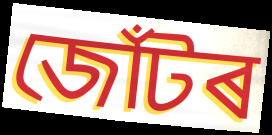
জোঁটৰ